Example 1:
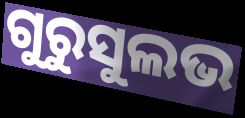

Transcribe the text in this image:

ଗୁରୁସୁଲଭ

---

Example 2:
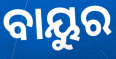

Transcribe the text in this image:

ବାୟୁର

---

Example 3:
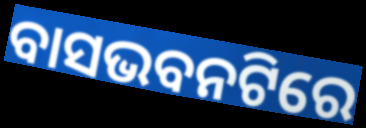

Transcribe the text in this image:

ବାସଭବନଟିରେ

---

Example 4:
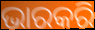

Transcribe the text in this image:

ଭାରକରି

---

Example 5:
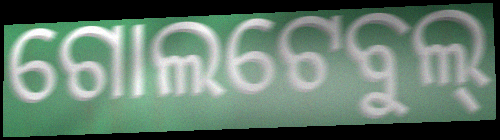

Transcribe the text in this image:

ଗୋଲଟେବୁଲ୍